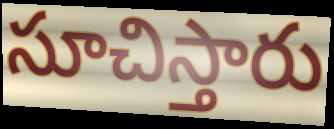
సూచిస్తారు